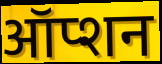
ऑप्शन